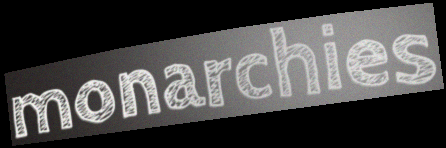
monarchies